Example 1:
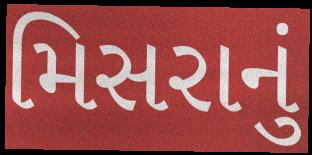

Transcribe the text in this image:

મિસરાનું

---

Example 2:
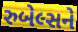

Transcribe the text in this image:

રુબેલ્સને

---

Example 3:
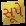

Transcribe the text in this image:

સૂપે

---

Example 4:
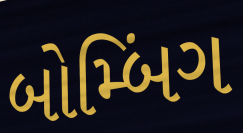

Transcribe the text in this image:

બોમ્બિંગ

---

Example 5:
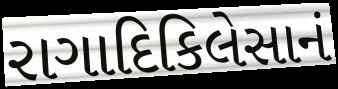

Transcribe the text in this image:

રાગાદિકિલેસાનં